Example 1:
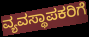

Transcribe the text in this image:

ವ್ಯವಸ್ಥಾಪಕರಿಗೆ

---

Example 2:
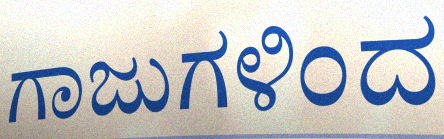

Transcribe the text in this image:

ಗಾಜುಗಳಿಂದ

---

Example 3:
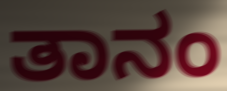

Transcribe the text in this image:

ತಾನಂ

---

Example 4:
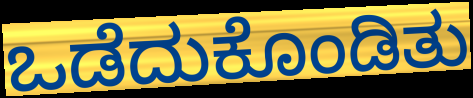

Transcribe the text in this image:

ಒಡೆದುಕೊಂಡಿತು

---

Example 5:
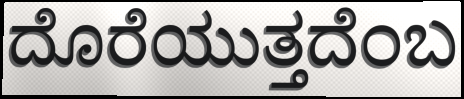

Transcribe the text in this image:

ದೊರೆಯುತ್ತದೆಂಬ